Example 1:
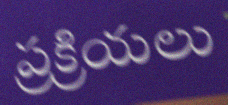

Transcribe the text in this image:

ప్రక్రియలు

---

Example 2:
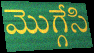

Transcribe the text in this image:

మొగ్గేసి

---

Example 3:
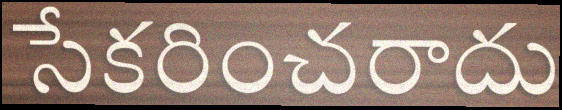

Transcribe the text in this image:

సేకరించరాదు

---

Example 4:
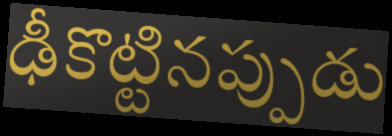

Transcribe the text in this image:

ఢీకొట్టినప్పుడు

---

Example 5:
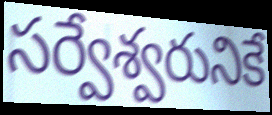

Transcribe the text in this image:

సర్వేశ్వరునికే